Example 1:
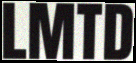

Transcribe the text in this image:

LMTD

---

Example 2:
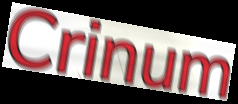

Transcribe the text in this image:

Crinum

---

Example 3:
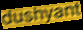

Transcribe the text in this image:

dushyant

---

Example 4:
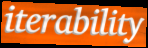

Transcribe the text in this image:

iterability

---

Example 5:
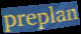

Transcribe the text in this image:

preplan